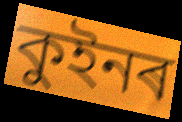
কুইনৰ